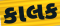
કાલક